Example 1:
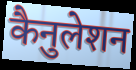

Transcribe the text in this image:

कैनुलेशन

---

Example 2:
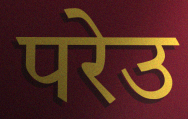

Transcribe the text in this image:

परेउ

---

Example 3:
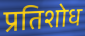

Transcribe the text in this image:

प्रतिशोध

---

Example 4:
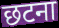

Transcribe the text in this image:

छटना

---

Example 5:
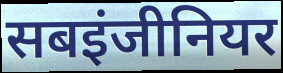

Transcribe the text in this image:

सबइंजीनियर